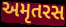
અમૃતરસ